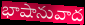
భాషానువాద